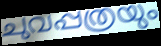
ചുവപ്പത്രയും